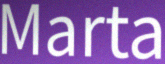
Marta